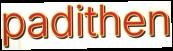
padithen